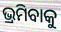
ଭ୍ରମିବାକୁ